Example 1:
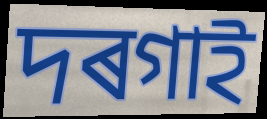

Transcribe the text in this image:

দৰগাই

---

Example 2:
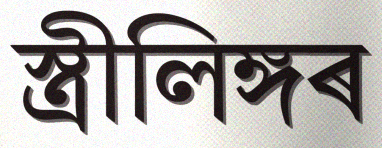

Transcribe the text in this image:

স্ত্ৰীলিঙ্গৰ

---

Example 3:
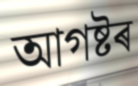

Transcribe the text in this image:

আগষ্টৰ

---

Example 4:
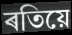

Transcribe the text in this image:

ৰতিয়ে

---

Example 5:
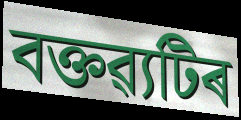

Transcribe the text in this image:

বক্তৱ্যটিৰ